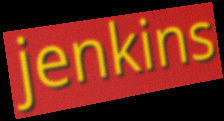
jenkins